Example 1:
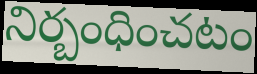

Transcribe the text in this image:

నిర్బంధించటం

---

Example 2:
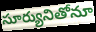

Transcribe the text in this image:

సూర్యునితోనూ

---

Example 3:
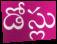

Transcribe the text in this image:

డోస్లు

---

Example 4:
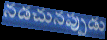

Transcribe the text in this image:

నడచునప్పుడు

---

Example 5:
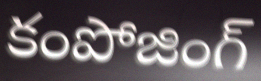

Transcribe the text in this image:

కంపోజింగ్